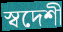
স্বদেশী